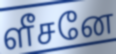
ளீசனே